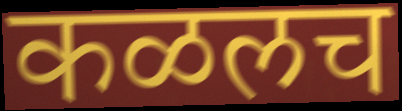
कळलच